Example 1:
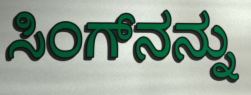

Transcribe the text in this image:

ಸಿಂಗ್‌ನನ್ನು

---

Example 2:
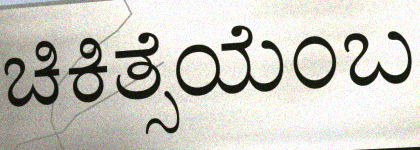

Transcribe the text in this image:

ಚಿಕಿತ್ಸೆಯೆಂಬ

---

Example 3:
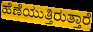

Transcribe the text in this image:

ಹೆಣೆಯುತ್ತಿರುತ್ತಾರೆ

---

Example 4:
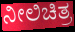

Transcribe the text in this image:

ನೀಲಿಚಿತ್ರ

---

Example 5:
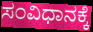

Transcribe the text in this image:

ಸಂವಿಧಾನಕ್ಕೆ